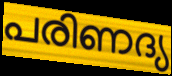
പരിണദ്യ